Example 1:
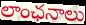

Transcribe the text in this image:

లాంఛనాలు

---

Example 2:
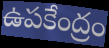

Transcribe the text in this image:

ఉపకేంద్రం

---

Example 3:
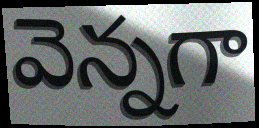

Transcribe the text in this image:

వెన్నగా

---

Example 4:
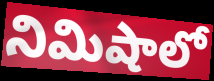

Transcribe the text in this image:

నిమిషాలో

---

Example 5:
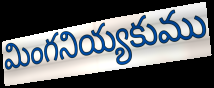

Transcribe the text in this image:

మింగనియ్యకుము